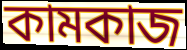
কামকাজ